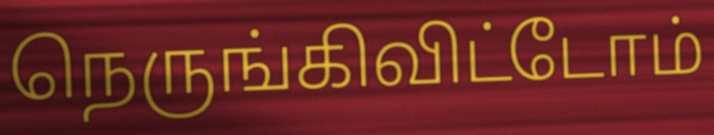
நெருங்கிவிட்டோம்